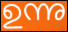
ഉന്നു